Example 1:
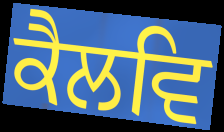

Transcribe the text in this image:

ਕੈਲਵਿ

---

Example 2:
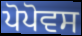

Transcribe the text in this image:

ਪੋਪੋਵਸ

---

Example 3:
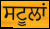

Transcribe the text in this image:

ਸਟੂਲਾਂ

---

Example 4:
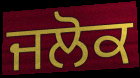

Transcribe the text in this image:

ਜਲੋਕ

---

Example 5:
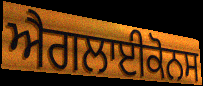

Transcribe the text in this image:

ਐਗਲਾਈਕੋਨਸ